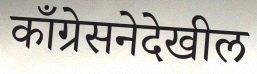
काँग्रेसनेदेखील